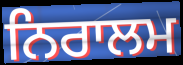
ਨਿਰਾਲਮ